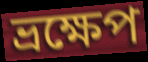
ভ্রক্ষেপ